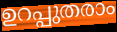
ഉറപ്പുതരാം